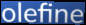
olefine